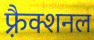
फ़्रैक्शनल